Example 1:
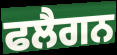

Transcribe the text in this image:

ਫਲੈਗਨ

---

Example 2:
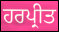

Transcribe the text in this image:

ਹਰਪ੍ਰੀਤ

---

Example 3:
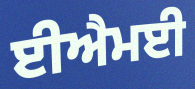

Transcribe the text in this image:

ਈਐਮਈ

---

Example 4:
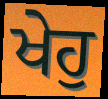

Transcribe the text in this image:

ਖੇਹੁ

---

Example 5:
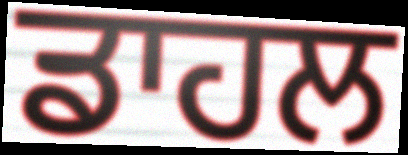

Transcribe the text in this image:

ਡਾਹਲ